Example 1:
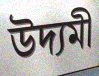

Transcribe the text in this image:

উদ্যমী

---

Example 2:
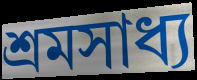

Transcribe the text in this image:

শ্ৰমসাধ্য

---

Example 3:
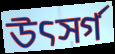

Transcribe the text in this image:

উৎসৰ্গ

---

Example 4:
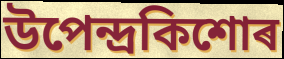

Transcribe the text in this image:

উপেন্দ্ৰকিশোৰ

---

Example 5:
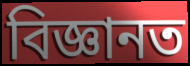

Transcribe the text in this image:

বিজ্ঞানত